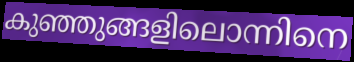
കുഞ്ഞുങ്ങളിലൊന്നിനെ